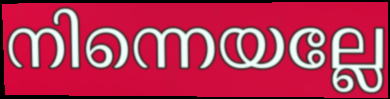
നിന്നെയല്ലേ